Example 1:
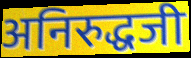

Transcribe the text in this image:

अनिरुद्धजी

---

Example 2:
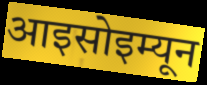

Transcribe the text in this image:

आइसोइम्यून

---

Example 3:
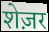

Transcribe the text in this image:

शेज़र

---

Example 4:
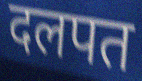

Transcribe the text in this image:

दलपत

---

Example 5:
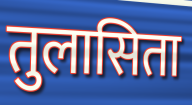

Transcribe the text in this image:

तुलासिता